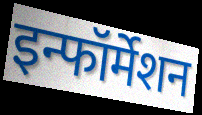
इन्फॉर्मेशन